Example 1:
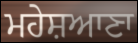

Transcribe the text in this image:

ਮਹੇਸ਼ਆਣਾ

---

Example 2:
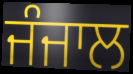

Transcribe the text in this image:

ਜੰਜਾਲ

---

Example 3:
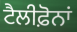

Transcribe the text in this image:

ਟੈਲੀਫ਼ੋਨਾਂ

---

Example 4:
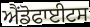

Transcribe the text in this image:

ਐਂਡੋਫਾਈਟਸ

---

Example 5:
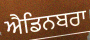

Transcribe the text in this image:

ਐਡਿਨਬਰਾ